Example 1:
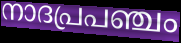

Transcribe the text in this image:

നാദപ്രപഞ്ചം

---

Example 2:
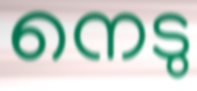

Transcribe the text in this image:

നെടു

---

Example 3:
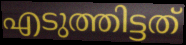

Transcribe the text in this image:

എടുത്തിട്ടത്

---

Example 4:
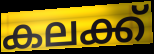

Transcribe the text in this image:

കലക്ക്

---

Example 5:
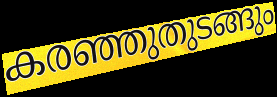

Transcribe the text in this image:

കരഞ്ഞുതുടങ്ങും